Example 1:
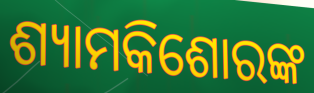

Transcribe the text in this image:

ଶ୍ୟାମକିଶୋରଙ୍କ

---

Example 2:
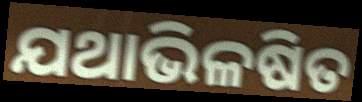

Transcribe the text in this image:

ଯଥାଭିଳଷିତ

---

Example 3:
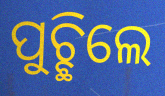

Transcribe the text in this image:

ପୁଚ୍ଛିଲେ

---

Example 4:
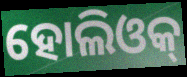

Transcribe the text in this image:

ହୋଲିଓକ୍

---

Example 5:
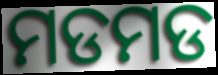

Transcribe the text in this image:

ମଡମଡ